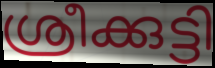
ശ്രീക്കുട്ടി